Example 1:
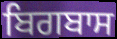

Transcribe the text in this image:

ਬਿਗਬਾਸ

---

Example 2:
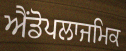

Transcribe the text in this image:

ਐਂਡੋਪਲਾਜਮਿਕ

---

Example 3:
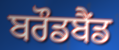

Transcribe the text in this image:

ਬਰੌਡਬੈਂਡ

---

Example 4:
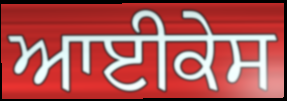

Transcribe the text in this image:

ਆਈਕੇਸ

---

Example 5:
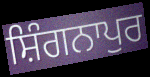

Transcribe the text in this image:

ਸ਼ਿੰਗਨਾਪੁਰ